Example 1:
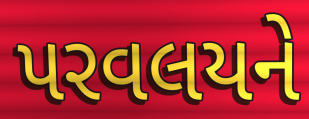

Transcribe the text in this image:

પરવલયને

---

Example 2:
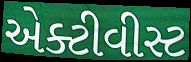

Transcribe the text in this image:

એક્ટીવીસ્ટ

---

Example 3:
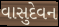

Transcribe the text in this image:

વાસુદેવન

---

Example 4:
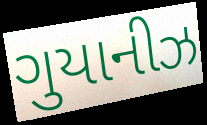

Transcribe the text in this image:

ગુયાનીઝ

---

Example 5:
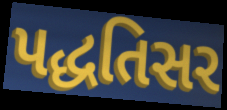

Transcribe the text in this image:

પદ્ધતિસર